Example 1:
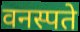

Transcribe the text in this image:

वनस्पते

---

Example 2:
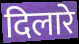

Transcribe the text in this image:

दिलारे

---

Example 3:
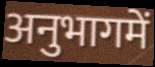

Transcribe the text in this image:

अनुभागमें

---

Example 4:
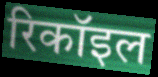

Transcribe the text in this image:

रिकॉइल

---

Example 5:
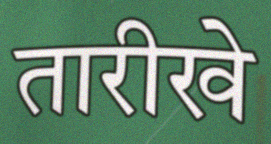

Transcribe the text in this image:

तारीखे